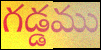
గడ్డము